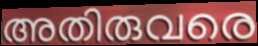
അതിരുവരെ